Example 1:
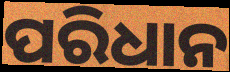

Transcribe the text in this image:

ପରିଧାନ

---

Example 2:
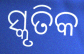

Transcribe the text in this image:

ସ୍କୃତିକ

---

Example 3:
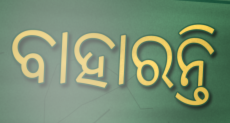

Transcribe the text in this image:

ବାହାରନ୍ତି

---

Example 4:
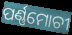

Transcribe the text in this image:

ପର୍ଣ୍ଣମୋଚୀ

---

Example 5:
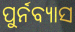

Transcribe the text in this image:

ପୁର୍ନବ୍ୟାସ